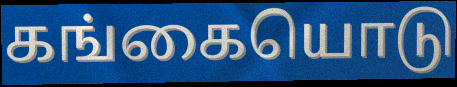
கங்கையொடு